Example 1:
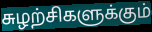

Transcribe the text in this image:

சுழற்சிகளுக்கும்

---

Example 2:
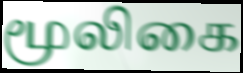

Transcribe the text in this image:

மூலிகை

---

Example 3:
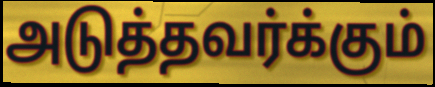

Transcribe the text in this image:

அடுத்தவர்க்கும்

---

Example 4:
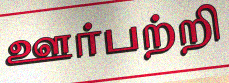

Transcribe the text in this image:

ஊர்பற்றி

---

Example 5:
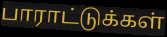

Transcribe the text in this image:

பாராட்டுக்கள்